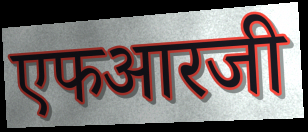
एफआरजी